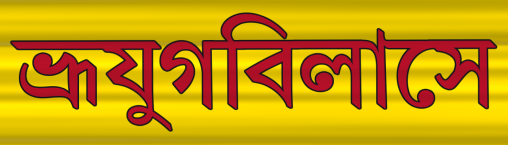
ভ্রূযুগবিলাসে